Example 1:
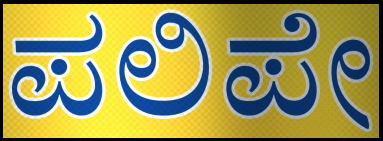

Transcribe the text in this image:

ಪಲಿಪೇ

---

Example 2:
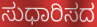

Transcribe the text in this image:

ಸುಧಾರಿಸದ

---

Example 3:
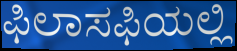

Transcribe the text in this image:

ಫಿಲಾಸಫಿಯಲ್ಲಿ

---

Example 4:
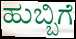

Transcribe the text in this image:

ಹುಬ್ಬಿಗೆ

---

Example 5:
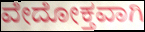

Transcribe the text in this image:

ವೇದೋಕ್ತವಾಗಿ